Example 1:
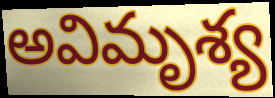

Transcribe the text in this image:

అవిమృశ్య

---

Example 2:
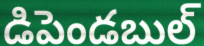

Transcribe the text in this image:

డిపెండబుల్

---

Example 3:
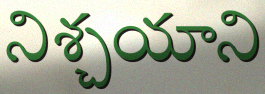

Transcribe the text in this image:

నిశ్చయాని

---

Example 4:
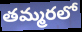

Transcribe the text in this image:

తమ్మరలో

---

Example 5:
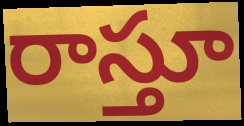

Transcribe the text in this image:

రాస్తూ